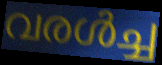
വരൾച്ച